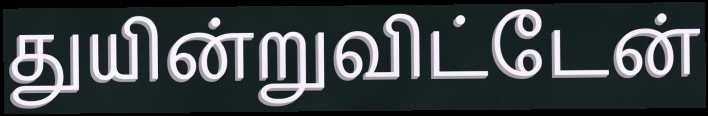
துயின்றுவிட்டேன்